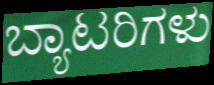
ಬ್ಯಾಟರಿಗಳು